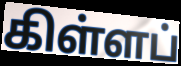
கிள்ளப்